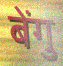
बेंगु